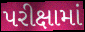
પરીક્ષામાં